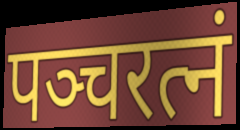
पञ्चरत्नं